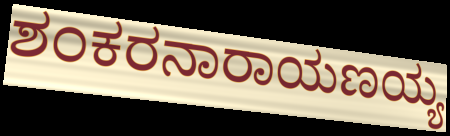
ಶಂಕರನಾರಾಯಣಯ್ಯ